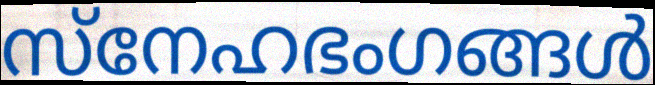
സ്നേഹഭംഗങ്ങൾ